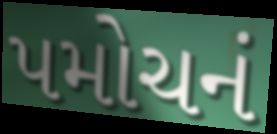
પમોચનં